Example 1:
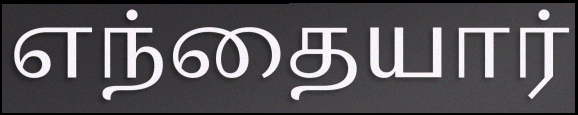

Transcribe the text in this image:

எந்தையார்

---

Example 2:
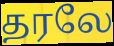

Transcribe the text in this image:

தரலே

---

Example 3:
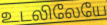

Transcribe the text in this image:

உடலிலேயே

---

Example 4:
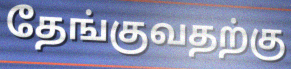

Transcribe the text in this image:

தேங்குவதற்கு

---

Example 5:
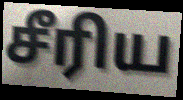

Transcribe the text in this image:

சீரிய